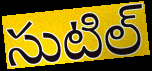
సుటిల్